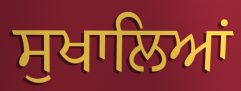
ਸੁਖਾਲਿਆਂ